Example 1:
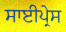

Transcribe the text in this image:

ਸਾਈਪ੍ਰੇਸ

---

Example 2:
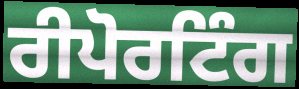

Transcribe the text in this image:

ਰੀਪੋਰਟਿੰਗ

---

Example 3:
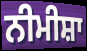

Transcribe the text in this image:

ਨੀਮੀਸ਼ਾ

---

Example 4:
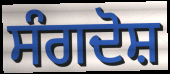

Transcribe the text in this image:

ਸੰਗਦੋਸ਼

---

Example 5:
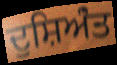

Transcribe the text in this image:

ਦੁਸ਼ਿਅਂੰਤ